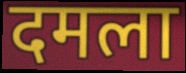
दमला